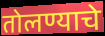
तोलण्याचे